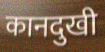
कानदुखी